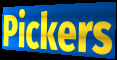
Pickers